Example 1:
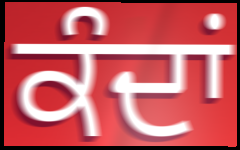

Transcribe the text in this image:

ਕੰਦਾਂ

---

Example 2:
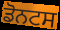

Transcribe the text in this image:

ਡੋਨਟਸ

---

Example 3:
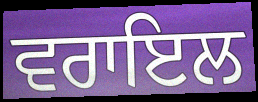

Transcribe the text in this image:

ਵਰਾਇਲ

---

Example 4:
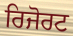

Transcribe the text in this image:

ਰਿਜੋਰਟ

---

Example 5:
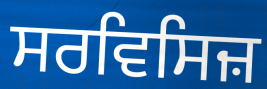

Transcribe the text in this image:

ਸਰਵਿਸਿਜ਼